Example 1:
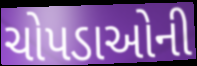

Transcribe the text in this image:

ચોપડાઓની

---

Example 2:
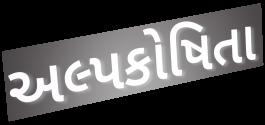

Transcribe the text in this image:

અલ્પકોષિતા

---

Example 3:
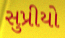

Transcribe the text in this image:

સુપ્રીયો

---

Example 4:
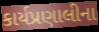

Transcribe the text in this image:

કાર્યપ્રણાલીના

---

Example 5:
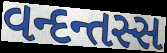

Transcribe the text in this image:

વન્દન્તસ્સ